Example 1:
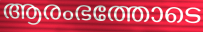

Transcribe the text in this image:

ആരംഭത്തോടെ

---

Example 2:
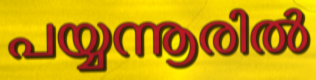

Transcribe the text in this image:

പയ്യന്നൂരിൽ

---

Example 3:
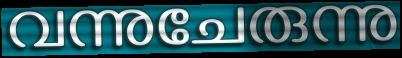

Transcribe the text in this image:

വന്നുചേരുന്നു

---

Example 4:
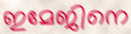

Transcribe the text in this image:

ഇമേജിനെ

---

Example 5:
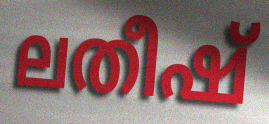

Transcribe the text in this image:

ലതീഷ്